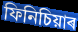
ফিনিচিয়াৰ